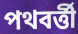
পথবর্ত্তী